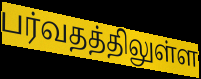
பர்வதத்திலுள்ள